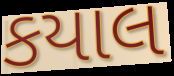
કયાલ